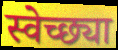
स्वेच्छ्या